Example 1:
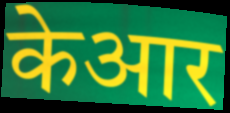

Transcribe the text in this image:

केआर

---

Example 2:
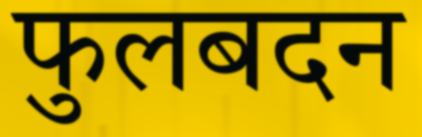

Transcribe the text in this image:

फुलबदन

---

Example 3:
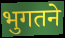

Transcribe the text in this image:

भुगतने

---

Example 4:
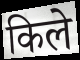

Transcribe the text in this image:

किले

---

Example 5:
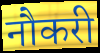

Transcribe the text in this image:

नौकरी